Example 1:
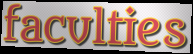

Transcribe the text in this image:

faculties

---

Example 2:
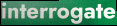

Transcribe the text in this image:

interrogate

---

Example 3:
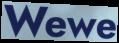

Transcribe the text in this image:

Wewe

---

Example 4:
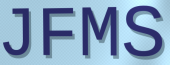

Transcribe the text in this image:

JFMS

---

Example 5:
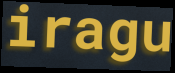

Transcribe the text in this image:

iragu